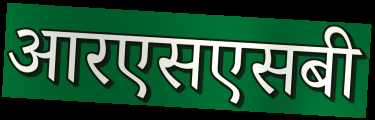
आरएसएसबी